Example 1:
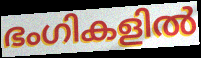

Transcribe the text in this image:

ഭംഗികളിൽ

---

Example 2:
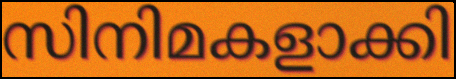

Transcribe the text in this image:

സിനിമകളാക്കി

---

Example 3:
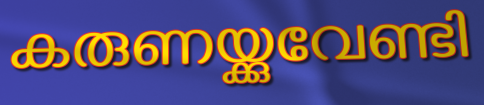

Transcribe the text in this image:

കരുണയ്ക്കുവേണ്ടി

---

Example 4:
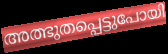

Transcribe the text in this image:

അത്ഭുതപ്പെട്ടുപോയി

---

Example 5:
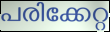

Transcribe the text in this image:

പരിക്കേറ്റ